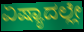
ಏಷ್ಯಾದಲ್ಲೇ